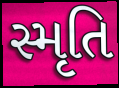
સ્મૃતિ